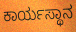
ಕಾರ್ಯಸ್ಥಾನ